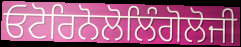
ਓਟੋਰਿਨੋਲੋਲਿੰਗੋਲੋਜੀ